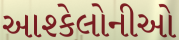
આશ્કેલોનીઓ